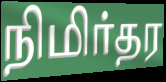
நிமிர்தர